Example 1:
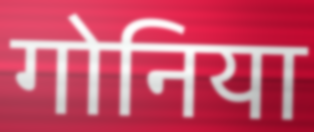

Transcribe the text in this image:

गोनिया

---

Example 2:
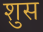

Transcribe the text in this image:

शुस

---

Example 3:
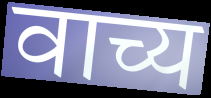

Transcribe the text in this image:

वाच्य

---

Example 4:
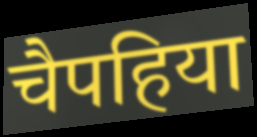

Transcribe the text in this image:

चैपहिया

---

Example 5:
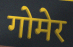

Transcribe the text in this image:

गोमेर